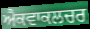
ਐਕਵਾਕਲਚਰ